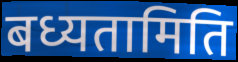
बध्यतामिति